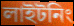
লাইটনিং